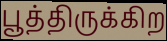
பூத்திருக்கிற